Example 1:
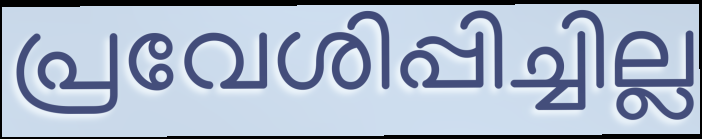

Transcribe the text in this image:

പ്രവേശിപ്പിച്ചില്ല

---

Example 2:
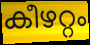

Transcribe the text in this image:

കീഴറ്റം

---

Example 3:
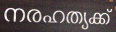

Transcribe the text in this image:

നരഹത്യക്ക്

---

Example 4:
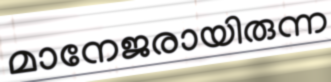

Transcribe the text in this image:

മാനേജരായിരുന്ന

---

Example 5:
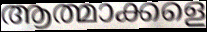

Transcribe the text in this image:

ആത്മാക്കളെ